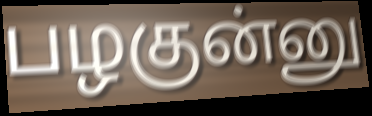
பழகுன்னு